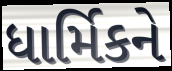
ધાર્મિકને